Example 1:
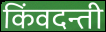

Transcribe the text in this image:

किंवदन्ती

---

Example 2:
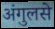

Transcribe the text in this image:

अंगुलसे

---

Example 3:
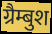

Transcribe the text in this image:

ग्रैम्बुश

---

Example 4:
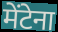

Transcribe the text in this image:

मेंटेना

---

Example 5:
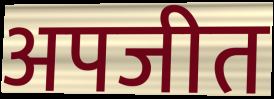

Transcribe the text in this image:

अपजीत